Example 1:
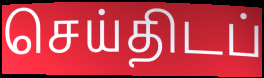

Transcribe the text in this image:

செய்திடப்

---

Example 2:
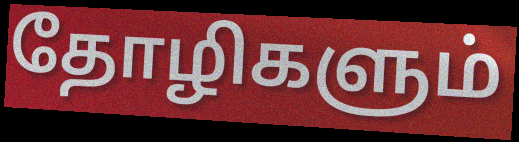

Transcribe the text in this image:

தோழிகளும்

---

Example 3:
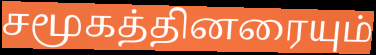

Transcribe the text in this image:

சமூகத்தினரையும்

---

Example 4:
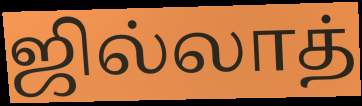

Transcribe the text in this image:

ஜில்லாத்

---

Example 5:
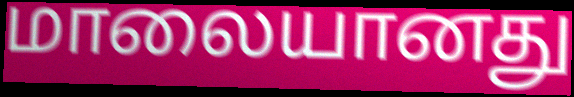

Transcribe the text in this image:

மாலையானது